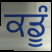
ਕਡੂੰ